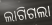
ଲାଗିଗଲା